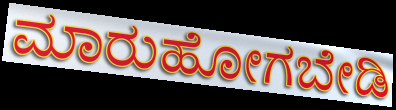
ಮಾರುಹೋಗಬೇಡಿ